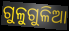
ଗୁଳୁଗୁଳିଆ